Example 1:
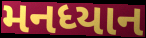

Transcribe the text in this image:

મનધ્યાન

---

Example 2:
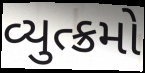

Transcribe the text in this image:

વ્યુત્ક્રમો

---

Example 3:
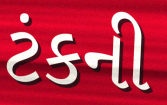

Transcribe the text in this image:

ટંકની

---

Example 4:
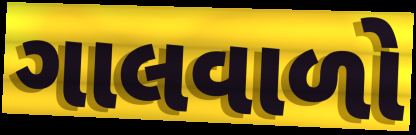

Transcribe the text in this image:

ગાલવાળો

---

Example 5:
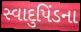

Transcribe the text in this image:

સ્વાદુપિંડના